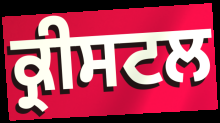
ਕ੍ਰੀਸਟਲ